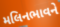
મલિનભાવને